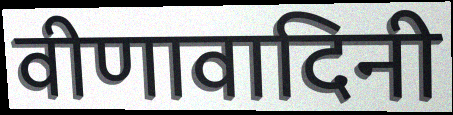
वीणावादिनी